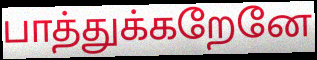
பாத்துக்கறேனே